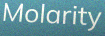
Molarity